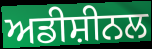
ਅਡੀਸ਼ੀਨਲ